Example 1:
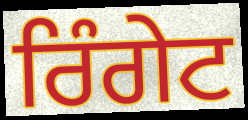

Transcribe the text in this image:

ਰਿੰਗੇਟ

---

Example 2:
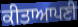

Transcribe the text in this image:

ਕੀਤਾਆਪਣੀ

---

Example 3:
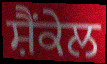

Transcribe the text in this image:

ਸ਼ੈਂਕੇਲ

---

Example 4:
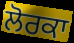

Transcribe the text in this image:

ਲੋਰਕਾ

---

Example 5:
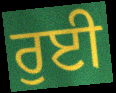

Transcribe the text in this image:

ਰੁਈ